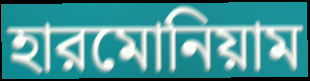
হারমোনিয়াম